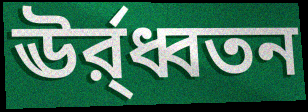
ঊর্র্ধ্বতন